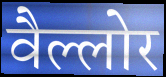
वैल्लोर